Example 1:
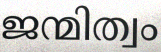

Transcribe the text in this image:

ജന്മിത്വം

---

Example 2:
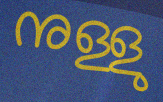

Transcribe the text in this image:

നുള്ളു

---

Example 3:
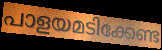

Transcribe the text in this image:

പാളയമടിക്കേണ്ട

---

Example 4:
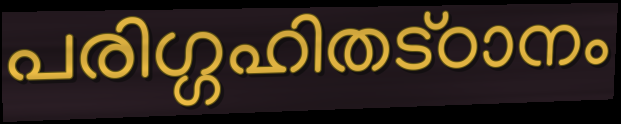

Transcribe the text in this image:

പരിഗ്ഗഹിതട്ഠാനം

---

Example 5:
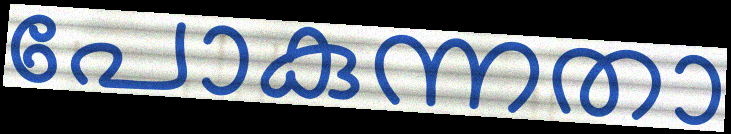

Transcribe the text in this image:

പോകുന്നതാ